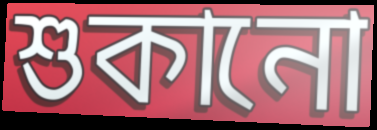
শুকানো